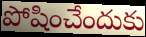
పోషించేందుకు